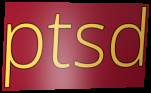
ptsd